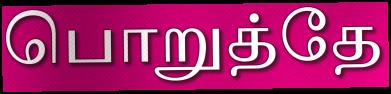
பொறுத்தே